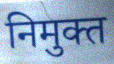
निमुक्त